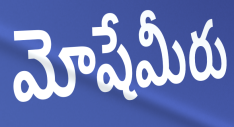
మోషేమీరు